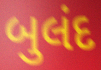
બુલંદ